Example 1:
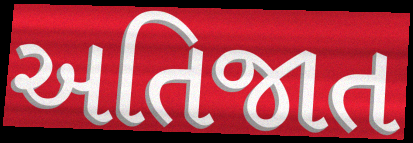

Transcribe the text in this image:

અતિજાત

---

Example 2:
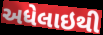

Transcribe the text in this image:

અધેલાઇથી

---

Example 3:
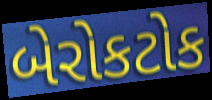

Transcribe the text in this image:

બેરોકટોક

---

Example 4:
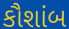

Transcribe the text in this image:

કૌશાંબ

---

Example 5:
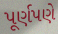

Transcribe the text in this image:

પૂર્ણપણે